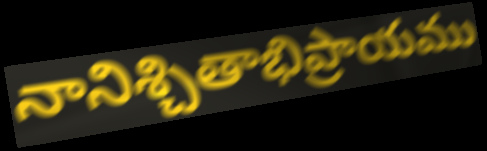
నానిశ్చితాభిప్రాయము